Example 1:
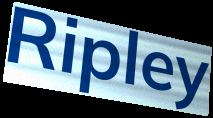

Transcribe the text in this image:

Ripley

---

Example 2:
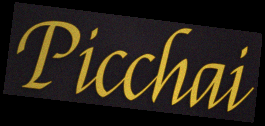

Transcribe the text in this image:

Picchai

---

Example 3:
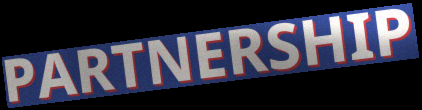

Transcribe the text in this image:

PARTNERSHIP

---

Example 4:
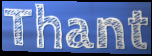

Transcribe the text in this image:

Thant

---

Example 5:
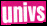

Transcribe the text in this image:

univs